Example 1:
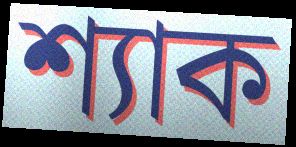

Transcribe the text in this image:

শ্যাক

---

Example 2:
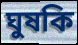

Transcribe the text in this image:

ঘুষকি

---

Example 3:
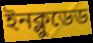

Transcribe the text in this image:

ইনক্লুডেড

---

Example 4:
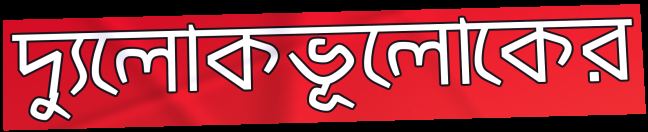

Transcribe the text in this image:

দ্যুলোকভূলোকের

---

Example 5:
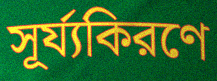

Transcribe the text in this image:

সূর্য্যকিরণে